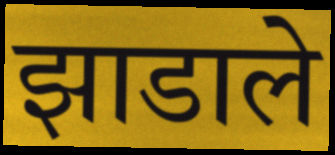
झाडाले